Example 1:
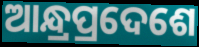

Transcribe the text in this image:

ଆନ୍ଧ୍ରପ୍ରଦେଶେ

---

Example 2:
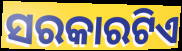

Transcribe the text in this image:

ସରକାରଟିଏ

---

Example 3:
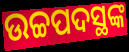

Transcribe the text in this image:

ଉଚ୍ଚପଦସ୍ଥଙ୍କ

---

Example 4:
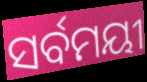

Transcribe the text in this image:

ସର୍ବମୟୀ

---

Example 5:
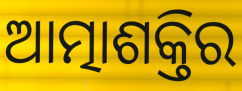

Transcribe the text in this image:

ଆତ୍ମାଶକ୍ତିର